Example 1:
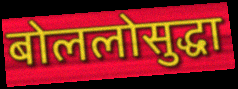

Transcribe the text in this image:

बोललोसुद्धा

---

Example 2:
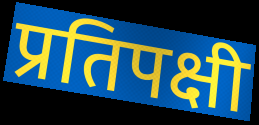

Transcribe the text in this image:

प्रतिपक्षी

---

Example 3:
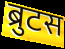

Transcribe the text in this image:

ब्रुटस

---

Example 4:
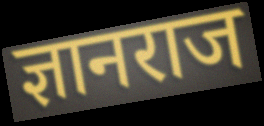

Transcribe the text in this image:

ज्ञानराज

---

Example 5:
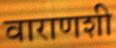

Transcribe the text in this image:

वाराणशी